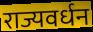
राज्यवर्धन